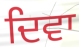
ਦਿਵਾ